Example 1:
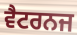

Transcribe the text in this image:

ਵੈਟਰਨਜ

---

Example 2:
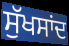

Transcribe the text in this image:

ਸੁੱਖਸਾਂਦ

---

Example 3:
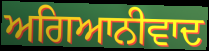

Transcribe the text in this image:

ਅਗਿਆਨੀਵਾਦ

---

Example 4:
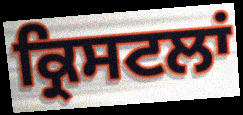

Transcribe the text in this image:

ਕ੍ਰਿਸਟਲਾਂ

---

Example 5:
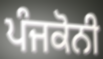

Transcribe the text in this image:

ਪੰਜਕੋਨੀ